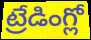
ట్రేడింగ్లో